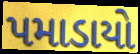
પમાડાયો